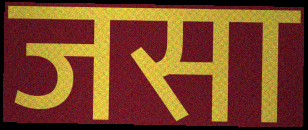
जसा